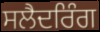
ਸਲੈਦਰਿੰਗ